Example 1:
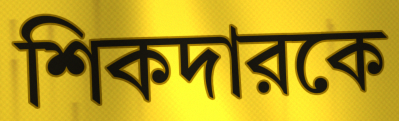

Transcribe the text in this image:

শিকদারকে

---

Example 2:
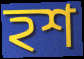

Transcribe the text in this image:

হশ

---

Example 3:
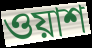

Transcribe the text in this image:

ওয়াশ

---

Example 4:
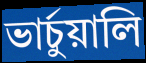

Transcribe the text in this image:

ভার্চুয়ালি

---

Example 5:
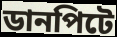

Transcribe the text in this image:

ডানপিটে